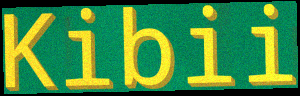
Kibii